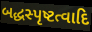
બદ્ધસ્પૃષ્ટત્વાદિ